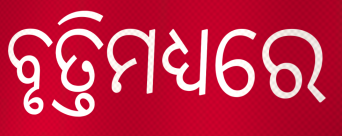
ବୃତ୍ତିମଧ୍ୟରେ